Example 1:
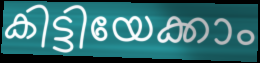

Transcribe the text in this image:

കിട്ടിയേക്കാം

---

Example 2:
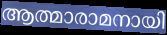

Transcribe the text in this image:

ആത്മാരാമനായി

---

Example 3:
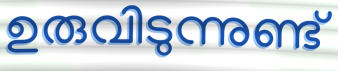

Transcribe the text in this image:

ഉരുവിടുന്നുണ്ട്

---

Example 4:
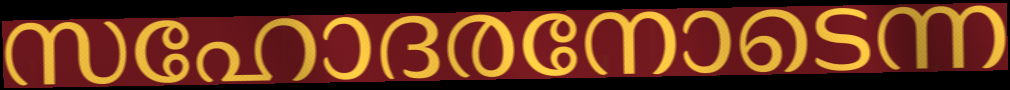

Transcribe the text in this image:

സഹോദരനോടെന്ന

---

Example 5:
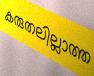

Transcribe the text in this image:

കരുതലില്ലാത്ത